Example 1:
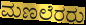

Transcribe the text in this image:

ಮಣಲೆರರು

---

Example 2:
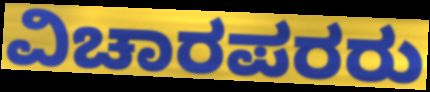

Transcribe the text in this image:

ವಿಚಾರಪರರು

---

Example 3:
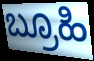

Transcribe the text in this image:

ಬ್ರೂಹಿ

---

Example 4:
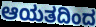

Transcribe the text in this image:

ಆಯತದಿಂದ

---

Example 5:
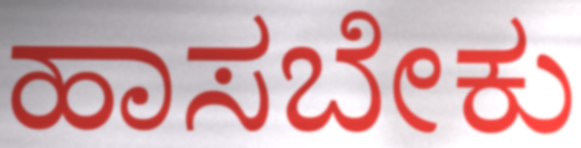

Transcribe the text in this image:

ಹಾಸಬೇಕು